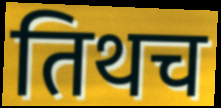
तिथच